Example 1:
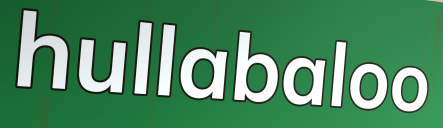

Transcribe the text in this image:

hullabaloo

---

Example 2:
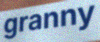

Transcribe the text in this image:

granny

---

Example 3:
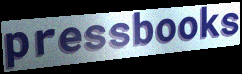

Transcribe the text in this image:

pressbooks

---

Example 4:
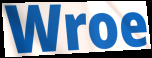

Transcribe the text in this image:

Wroe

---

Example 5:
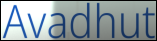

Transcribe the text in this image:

Avadhut